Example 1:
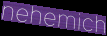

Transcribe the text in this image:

nehemich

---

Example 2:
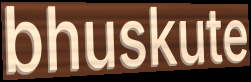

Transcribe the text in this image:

bhuskute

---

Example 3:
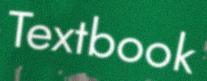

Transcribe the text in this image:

Textbook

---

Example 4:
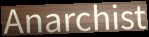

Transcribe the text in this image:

Anarchist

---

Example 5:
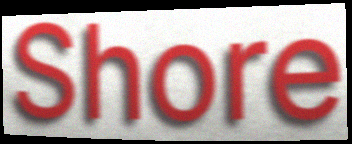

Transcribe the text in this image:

Shore